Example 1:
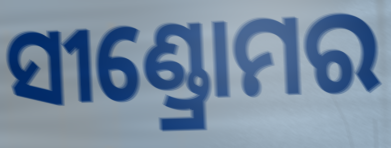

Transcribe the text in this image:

ସୀଣ୍ଡ୍ରୋମର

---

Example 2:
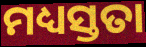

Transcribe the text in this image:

ମଧ୍ୟସ୍ତତା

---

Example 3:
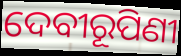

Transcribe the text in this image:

ଦେବୀରୂପିଣୀ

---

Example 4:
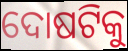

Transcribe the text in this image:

ଦୋଷଟିକୁ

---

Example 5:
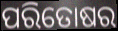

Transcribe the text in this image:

ପରିତୋଷର